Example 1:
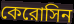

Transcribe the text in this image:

কেরোসিন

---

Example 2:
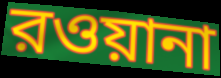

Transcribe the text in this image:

রওয়ানা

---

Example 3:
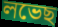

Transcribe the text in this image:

লভেছ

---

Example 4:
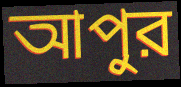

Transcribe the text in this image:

আপুর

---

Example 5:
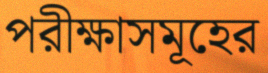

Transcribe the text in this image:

পরীক্ষাসমূহের